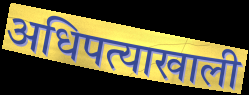
अधिपत्‍याखाली